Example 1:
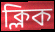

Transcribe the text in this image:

ক্লিক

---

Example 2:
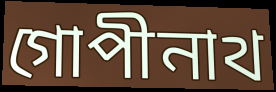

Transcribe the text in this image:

গোপীনাথ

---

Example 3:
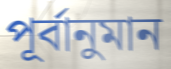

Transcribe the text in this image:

পূৰ্বানুমান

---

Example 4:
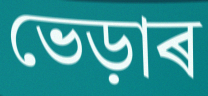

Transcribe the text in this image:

ভেড়াৰ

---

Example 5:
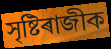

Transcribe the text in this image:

সৃষ্টিৰাজীক